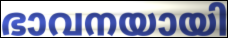
ഭാവനയായി